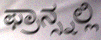
ಫ್ರಾನ್ಸ್ನಲ್ಲಿ